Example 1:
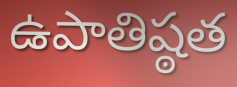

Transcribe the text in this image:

ఉపాతిష్ఠత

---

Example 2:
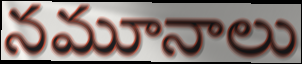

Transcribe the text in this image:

నమూనాలు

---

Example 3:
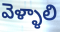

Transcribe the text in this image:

వెళ్ళాలి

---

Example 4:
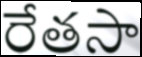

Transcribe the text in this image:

రేతసా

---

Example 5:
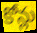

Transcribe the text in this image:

కోన్లు